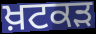
ਖ਼ਟਕੜ